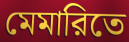
মেমারিতে